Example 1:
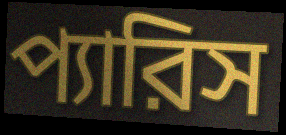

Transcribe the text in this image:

প্যারিস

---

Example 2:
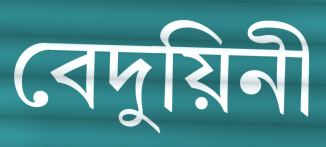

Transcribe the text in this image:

বেদুয়িনী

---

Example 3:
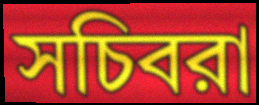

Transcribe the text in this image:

সচিবরা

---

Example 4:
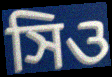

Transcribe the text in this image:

সিও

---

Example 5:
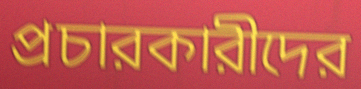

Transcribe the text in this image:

প্রচারকারীদের